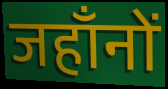
जहाँनों